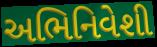
અભિનિવેશી